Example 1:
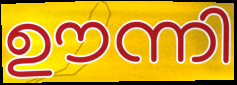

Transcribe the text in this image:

ഊന്നി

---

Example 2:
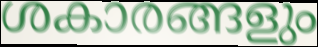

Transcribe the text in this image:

ശകാരങ്ങളും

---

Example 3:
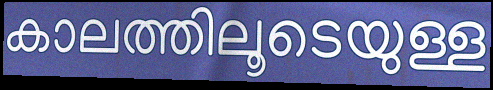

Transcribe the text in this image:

കാലത്തിലൂടെയുള്ള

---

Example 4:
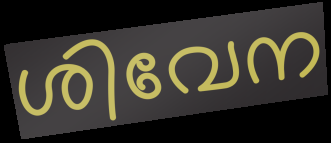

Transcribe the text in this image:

ശിവേന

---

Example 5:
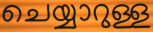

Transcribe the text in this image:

ചെയ്യാറുള്ള